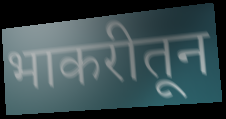
भाकरीतून